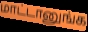
மாட்டானுங்க